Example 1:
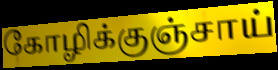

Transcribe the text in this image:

கோழிக்குஞ்சாய்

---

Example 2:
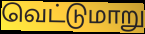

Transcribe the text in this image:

வெட்டுமாறு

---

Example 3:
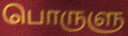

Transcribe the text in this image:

பொருளு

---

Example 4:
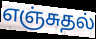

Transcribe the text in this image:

எஞ்சுதல்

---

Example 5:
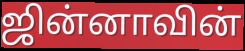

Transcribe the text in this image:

ஜின்னாவின்